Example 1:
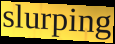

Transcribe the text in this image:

slurping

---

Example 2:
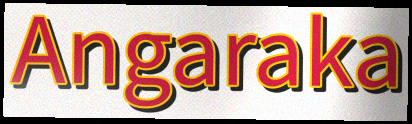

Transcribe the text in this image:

Angaraka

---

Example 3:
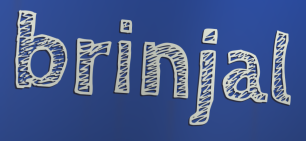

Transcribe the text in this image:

brinjal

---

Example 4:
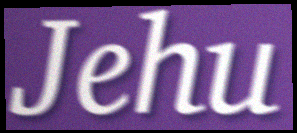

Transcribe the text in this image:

Jehu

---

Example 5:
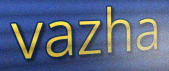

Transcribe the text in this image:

vazha